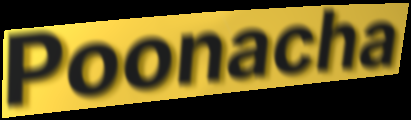
Poonacha